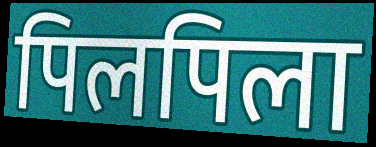
पिलपिला